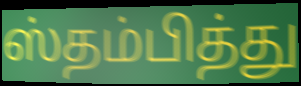
ஸ்தம்பித்து